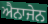
ਐਨਾਜੇਨ